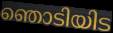
ഞൊടിയിട